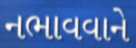
નભાવવાને